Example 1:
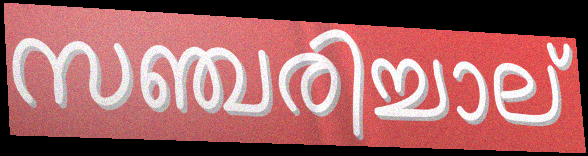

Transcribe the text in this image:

സഞ്ചരിച്ചാല്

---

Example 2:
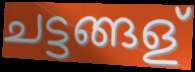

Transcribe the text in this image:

ചട്ടങ്ങള്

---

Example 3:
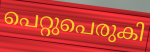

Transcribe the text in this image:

പെറ്റുപെരുകി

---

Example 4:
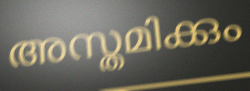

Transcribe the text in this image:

അസ്തമിക്കും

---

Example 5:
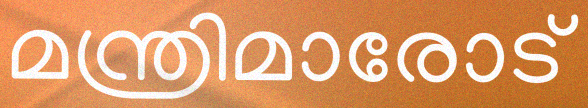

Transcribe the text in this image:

മന്ത്രിമാരോട്